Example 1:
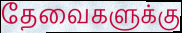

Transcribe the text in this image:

தேவைகளுக்கு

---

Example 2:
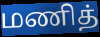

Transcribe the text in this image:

மணித்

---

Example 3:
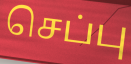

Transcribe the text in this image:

செப்பு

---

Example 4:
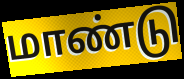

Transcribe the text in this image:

மாண்டு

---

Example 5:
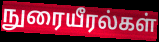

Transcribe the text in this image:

நுரையீரல்கள்